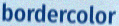
bordercolor